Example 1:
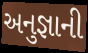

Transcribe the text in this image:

અનુજ્ઞાની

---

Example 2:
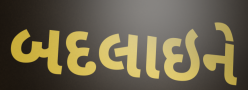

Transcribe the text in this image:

બદલાઇને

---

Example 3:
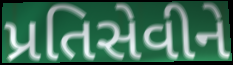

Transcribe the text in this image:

પ્રતિસેવીને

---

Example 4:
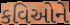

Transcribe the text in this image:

કવિઓને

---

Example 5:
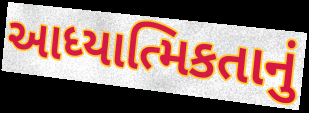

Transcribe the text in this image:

આધ્યાત્મિકતાનું